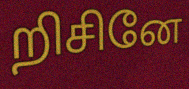
றிசினே